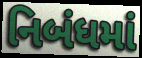
નિબંધમાં